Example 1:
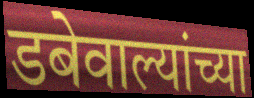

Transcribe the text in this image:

डबेवाल्यांच्या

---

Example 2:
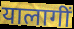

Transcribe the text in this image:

यालागीं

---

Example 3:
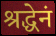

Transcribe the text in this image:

श्रद्धेनं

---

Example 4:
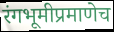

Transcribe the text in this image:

रंगभूमीप्रमाणेच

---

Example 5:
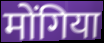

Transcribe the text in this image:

मोंगिया